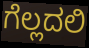
ಗೆಲ್ಲದಲಿ